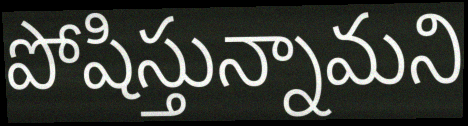
పోషిస్తున్నామని